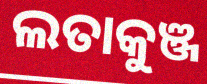
ଲତାକୁଞ୍ଜ